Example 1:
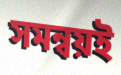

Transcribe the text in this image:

সমন্বয়ই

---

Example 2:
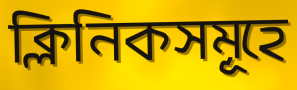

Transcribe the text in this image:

ক্লিনিকসমূহে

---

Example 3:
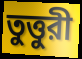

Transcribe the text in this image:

তুত্তুরী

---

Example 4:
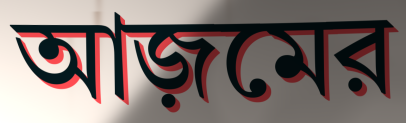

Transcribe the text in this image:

আজ়মের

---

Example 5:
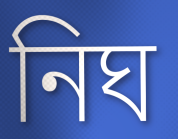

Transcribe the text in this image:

নিঘ